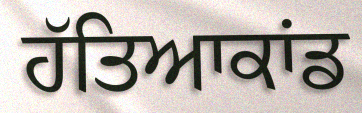
ਹੱਤਿਆਕਾਂਡ